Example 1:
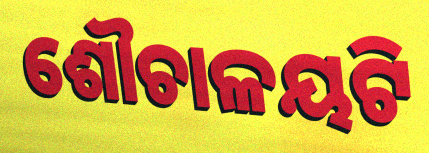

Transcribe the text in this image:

ଶୌଚାଳୟଟି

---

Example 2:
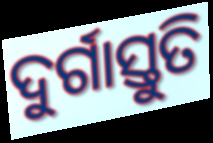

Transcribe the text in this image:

ଦୁର୍ଗାସ୍ତୁତି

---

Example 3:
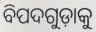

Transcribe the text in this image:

ବିପଦଗୁଡ଼ାକୁ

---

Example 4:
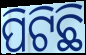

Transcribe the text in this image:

ପିଟିଛି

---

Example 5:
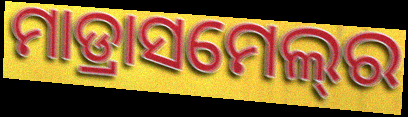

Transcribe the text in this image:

ମାଡ୍ରାସମେଲ୍‍ର